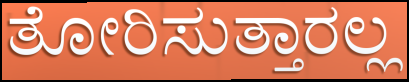
ತೋರಿಸುತ್ತಾರಲ್ಲ